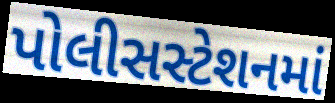
પોલીસસ્ટેશનમાં